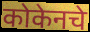
कोकेनचे